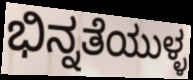
ಭಿನ್ನತೆಯುಳ್ಳ